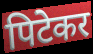
पिटेकर